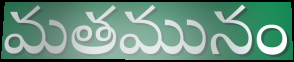
మతమునం